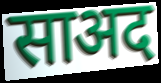
साअद